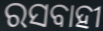
ରସବାହୀ